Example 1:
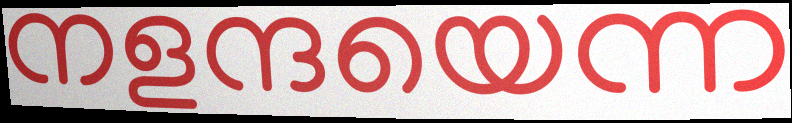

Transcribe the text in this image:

നളന്ദയെന്ന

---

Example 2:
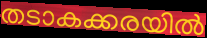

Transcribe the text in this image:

തടാകക്കരയിൽ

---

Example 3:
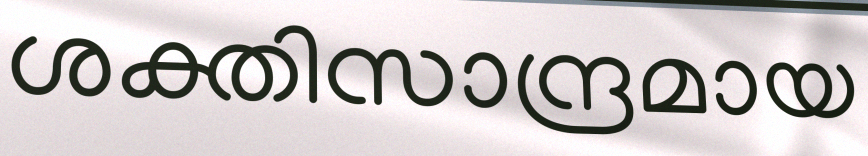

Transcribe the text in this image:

ശക്തിസാന്ദ്രമായ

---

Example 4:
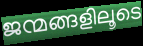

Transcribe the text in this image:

ജന്മങ്ങളിലൂടെ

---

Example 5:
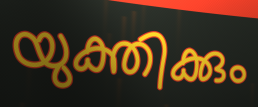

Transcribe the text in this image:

യുക്തിക്കും